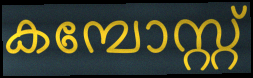
കമ്പോസ്റ്റ്